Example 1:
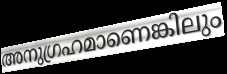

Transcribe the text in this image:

അനുഗ്രഹമാണെങ്കിലും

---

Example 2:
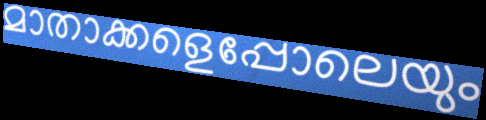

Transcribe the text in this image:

മാതാക്കളെപ്പോലെയും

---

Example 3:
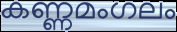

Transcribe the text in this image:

കണ്ണമംഗലം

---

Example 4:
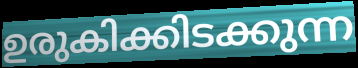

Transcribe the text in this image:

ഉരുകിക്കിടക്കുന്ന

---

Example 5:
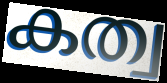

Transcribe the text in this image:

കത്വ